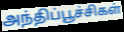
அந்திப்பூச்சிகள்